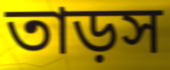
তাড়স